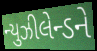
ન્યુઝીલેન્ડને